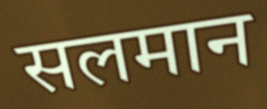
सलमान